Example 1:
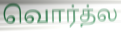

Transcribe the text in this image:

வொர்த்ல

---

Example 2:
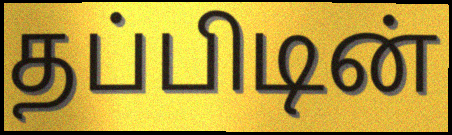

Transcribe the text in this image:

தப்பிடின்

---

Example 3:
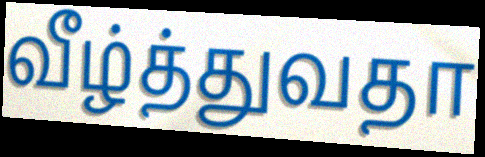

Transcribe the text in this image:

வீழ்த்துவதா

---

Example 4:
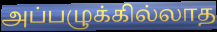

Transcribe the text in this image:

அப்பழுக்கில்லாத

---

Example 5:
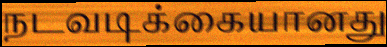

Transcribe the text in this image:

நடவடிக்கையானது